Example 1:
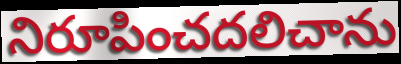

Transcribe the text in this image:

నిరూపించదలిచాను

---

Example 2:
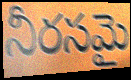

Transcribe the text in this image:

నీరసమై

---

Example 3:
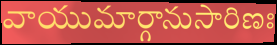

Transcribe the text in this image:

వాయుమార్గానుసారిణః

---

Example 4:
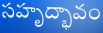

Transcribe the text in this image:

సహృద్భావం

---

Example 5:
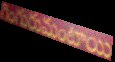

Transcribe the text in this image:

గింగురుమంటాయి